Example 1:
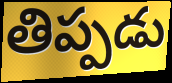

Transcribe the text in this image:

తిప్పడు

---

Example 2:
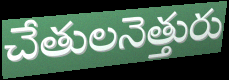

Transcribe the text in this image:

చేతులనెత్తురు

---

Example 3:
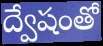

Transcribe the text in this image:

ద్వేషంతో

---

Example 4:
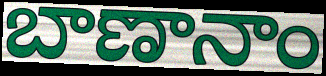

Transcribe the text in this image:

బాణానాం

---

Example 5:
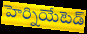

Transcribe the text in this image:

హెర్నియేటెడ్